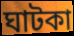
ঘাটকা